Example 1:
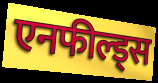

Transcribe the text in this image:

एनफील्ड्स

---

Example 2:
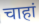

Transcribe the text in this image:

चाहां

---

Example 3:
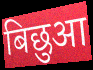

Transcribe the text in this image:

बिछुआ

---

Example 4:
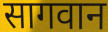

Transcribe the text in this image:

सागवान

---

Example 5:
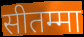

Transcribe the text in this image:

सीतम्मा